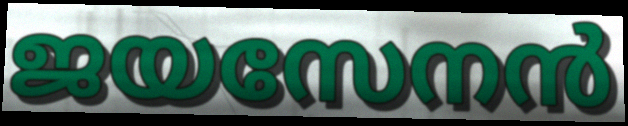
ജയസേനൻ